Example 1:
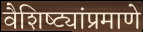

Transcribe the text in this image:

वैशिष्ट्यांप्रमाणे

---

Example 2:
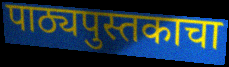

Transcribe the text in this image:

पाठ्यपुस्तकाचा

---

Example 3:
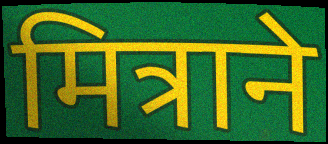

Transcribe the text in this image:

मित्राने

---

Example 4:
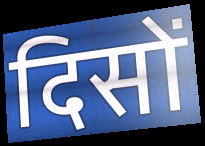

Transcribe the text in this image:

दिसों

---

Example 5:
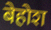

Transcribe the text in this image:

बेहोश